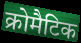
क्रोमैटिक